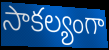
సాకల్యంగా